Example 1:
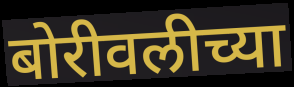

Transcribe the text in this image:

बोरीवलीच्या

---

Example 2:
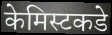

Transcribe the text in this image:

केमिस्टकडे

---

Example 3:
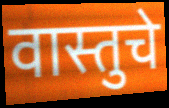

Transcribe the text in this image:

वास्तुचे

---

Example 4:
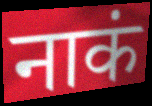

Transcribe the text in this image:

नाकं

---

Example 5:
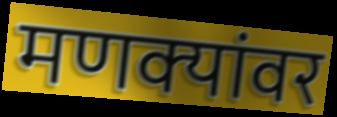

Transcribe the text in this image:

मणक्यांवर